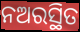
ନଅରସ୍ଥିତ